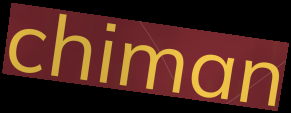
chiman